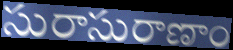
సురాసురాణాం